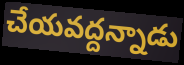
చేయవద్దన్నాడు